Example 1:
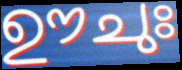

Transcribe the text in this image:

ഊചുഃ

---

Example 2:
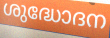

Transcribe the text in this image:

ശുദ്ധോദന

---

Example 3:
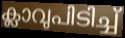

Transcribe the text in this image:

ക്ലാവുപിടിച്ച്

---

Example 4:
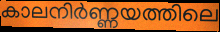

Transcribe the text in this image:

കാലനിർണ്ണയത്തിലെ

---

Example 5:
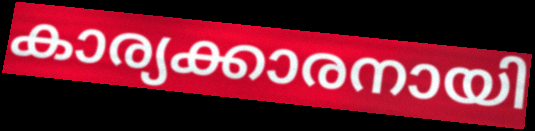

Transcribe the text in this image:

കാര്യക്കാരനായി